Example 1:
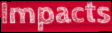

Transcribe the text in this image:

Impacts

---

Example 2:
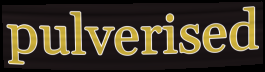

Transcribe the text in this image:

pulverised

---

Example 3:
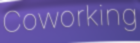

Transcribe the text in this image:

Coworking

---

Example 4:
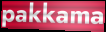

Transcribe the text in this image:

pakkama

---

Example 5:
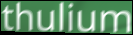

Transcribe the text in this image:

thulium